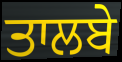
ਤਾਲਬੇ